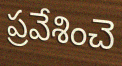
ప్రవేశించె